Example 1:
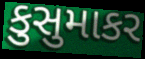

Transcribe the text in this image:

કુસુમાકર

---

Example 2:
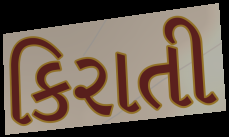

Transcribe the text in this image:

કિરાતી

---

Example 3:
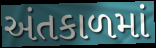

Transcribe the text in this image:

અંતકાળમાં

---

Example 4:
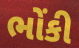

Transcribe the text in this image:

ભોંકી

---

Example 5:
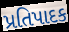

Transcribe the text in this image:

પ્રતિપાદક